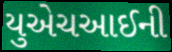
યુએચઆઈની